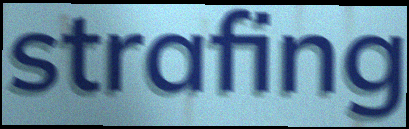
strafing